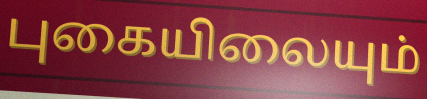
புகையிலையும்